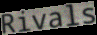
Rivals